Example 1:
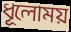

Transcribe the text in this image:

ধূলোময়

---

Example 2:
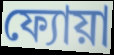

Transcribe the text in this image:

ফ্যোয়া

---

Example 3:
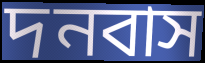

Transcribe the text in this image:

দনবাস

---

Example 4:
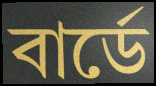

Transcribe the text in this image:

বার্ডে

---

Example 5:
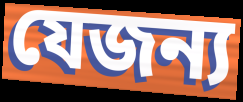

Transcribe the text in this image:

যেজন্য